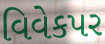
વિવેકપર